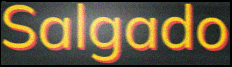
Salgado